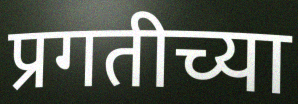
प्रगतीच्या